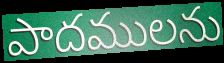
పాదములను